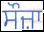
ਸੌਜ਼ਾ